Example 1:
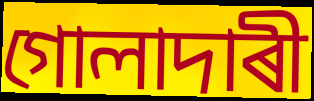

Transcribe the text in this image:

গোলাদাৰী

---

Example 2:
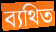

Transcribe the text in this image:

ব্যথিত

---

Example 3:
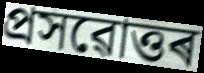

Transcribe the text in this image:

প্ৰসৱোত্তৰ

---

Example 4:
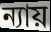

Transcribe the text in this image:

ন্যায়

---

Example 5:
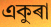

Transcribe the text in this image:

একুৰা